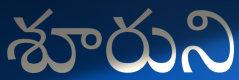
శూరుని